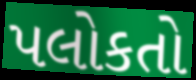
પલોકતો